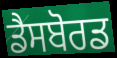
ਡੈਸਬੋਰਡ